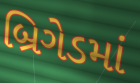
બ્રિગેડમાં